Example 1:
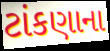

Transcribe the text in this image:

ટાંકણાના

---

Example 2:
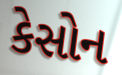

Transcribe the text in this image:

કેસોન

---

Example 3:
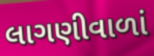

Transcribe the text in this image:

લાગણીવાળાં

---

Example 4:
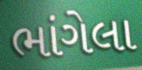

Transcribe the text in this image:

ભાંગેલા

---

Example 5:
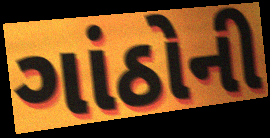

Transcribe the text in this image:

ગાંઠોની